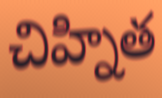
చిహ్నిత